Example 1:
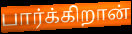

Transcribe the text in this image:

பார்க்கிறான்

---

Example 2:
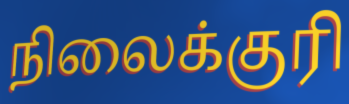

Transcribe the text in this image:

நிலைக்குரி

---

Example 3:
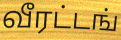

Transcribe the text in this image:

வீரட்டங்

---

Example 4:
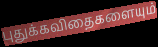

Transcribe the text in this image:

புதுக்கவிதைகளையும்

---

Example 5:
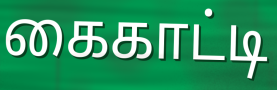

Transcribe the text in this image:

கைகாட்டி